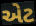
એટ